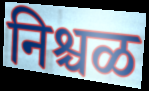
निश्चळ